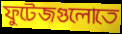
ফুটেজগুলোতে